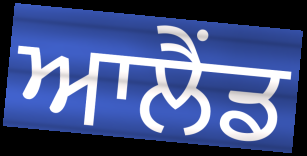
ਆਲੈਂਡ